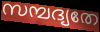
സമ്പദ്യതേ